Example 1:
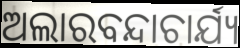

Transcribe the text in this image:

ଅଲାରବନ୍ଦାଚାର୍ଯ୍ୟ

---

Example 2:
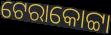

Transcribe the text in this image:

ଟେରାକୋଟ୍ଟା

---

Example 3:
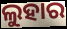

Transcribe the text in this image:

ଲୁହାର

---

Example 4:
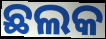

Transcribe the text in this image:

ଛଲକ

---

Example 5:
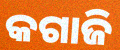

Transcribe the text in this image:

କଗାଜି